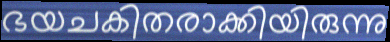
ഭയചകിതരാക്കിയിരുന്നു